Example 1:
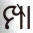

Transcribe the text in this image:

ମ୍ପା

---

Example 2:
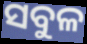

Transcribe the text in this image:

ସବୁଳ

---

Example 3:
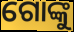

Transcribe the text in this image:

ଗୋଙ୍କୁ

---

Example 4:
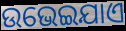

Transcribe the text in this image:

ଉଭେଇଯାଏ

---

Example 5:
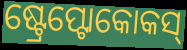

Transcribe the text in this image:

ଷ୍ଟ୍ରେପ୍ଟୋକୋକସ୍